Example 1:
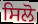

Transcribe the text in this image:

ਸਿਲੋ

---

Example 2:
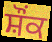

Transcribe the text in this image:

ਸ਼ੌੰਕ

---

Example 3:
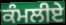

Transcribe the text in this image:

ਕੰਮਲੀਏ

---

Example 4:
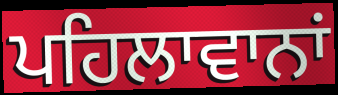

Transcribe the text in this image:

ਪਹਿਲਾਵਾਨਾਂ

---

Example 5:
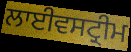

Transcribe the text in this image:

ਲਾਈਵਸਟ੍ਰੀਮ